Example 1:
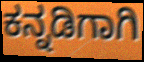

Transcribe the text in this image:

ಕನ್ನಡಿಗಾಗಿ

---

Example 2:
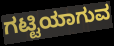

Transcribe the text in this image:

ಗಟ್ಟಿಯಾಗುವ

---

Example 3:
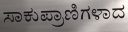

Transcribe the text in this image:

ಸಾಕುಪ್ರಾಣಿಗಳಾದ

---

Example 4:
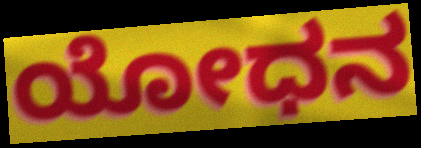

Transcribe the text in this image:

ಯೋಧನ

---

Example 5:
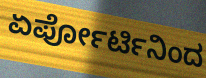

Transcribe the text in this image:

ಏರ್ಪೋರ್ಟಿನಿಂದ